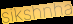
sikshnha